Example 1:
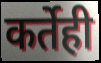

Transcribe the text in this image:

कर्तेही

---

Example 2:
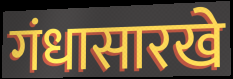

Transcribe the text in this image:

गंधासारखे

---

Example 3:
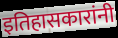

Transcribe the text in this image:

इतिहासकारांनी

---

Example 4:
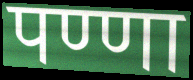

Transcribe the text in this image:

पण्णा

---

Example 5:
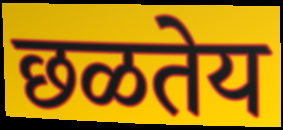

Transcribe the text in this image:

छळतेय